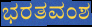
ಭರತವಂಶ